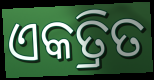
ଏକତ୍ରିତ